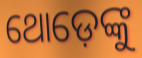
ଥୋଡ଼େଙ୍କୁ